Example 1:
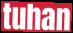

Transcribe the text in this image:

tuhan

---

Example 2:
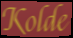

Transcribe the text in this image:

Kolde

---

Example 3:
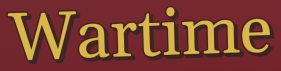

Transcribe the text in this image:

Wartime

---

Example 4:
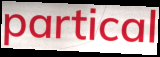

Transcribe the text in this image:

partical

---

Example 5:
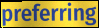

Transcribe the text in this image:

preferring